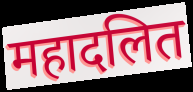
महादलित